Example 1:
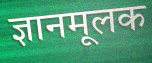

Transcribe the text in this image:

ज्ञानमूलक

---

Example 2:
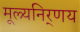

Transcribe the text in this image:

मूल्यनिर्णय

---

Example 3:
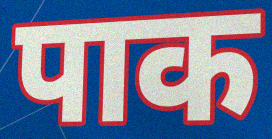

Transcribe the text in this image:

पाक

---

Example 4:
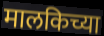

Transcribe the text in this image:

मालकिच्या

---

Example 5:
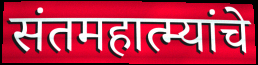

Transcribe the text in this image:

संतमहात्म्यांचे